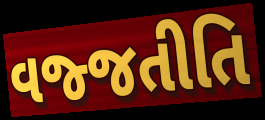
વજ્જતીતિ